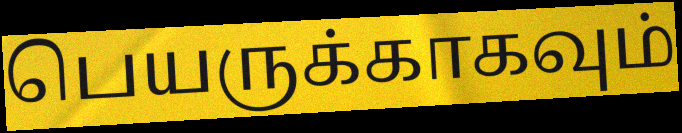
பெயருக்காகவும்